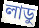
লাডু